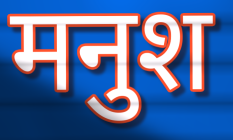
मनुश